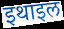
इथाइल